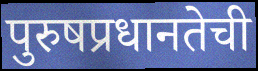
पुरुषप्रधानतेची